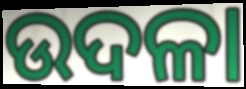
ଉଦଳା